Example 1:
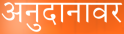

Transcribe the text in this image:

अनुदानावर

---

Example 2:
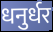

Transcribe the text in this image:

धनुर्धर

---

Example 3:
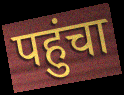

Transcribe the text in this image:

पहुंचा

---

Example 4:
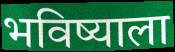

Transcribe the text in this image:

भविष्याला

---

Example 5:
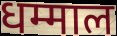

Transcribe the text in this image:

धम्माल